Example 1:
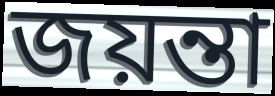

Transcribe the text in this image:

জয়ন্তা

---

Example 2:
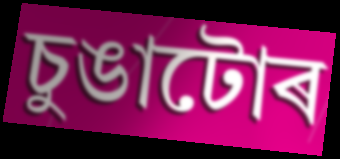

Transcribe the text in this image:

চুঙাটোৰ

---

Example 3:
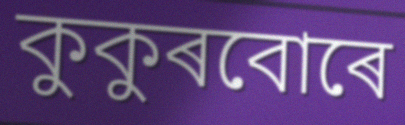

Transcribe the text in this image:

কুকুৰবোৰে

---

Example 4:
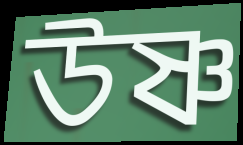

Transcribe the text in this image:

উষ্ণ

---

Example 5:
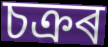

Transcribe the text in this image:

চক্ৰৰ